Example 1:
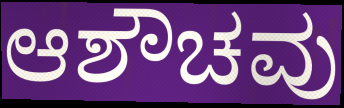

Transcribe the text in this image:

ಆಶೌಚವು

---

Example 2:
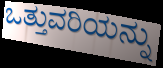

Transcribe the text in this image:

ಒತ್ತುವರಿಯನ್ನು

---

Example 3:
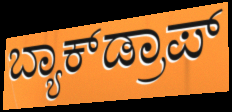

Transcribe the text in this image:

ಬ್ಯಾಕ್‌ಡ್ರಾಪ್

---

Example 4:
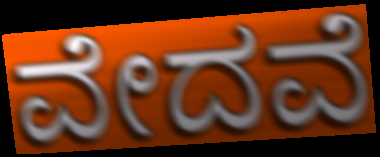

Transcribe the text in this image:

ವೇದವೆ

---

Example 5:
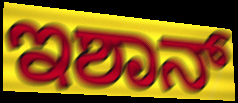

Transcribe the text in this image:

ಇಶಾನ್